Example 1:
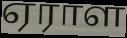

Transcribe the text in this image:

ஏராள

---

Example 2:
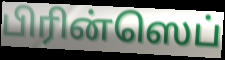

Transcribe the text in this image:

பிரின்ஸெப்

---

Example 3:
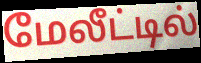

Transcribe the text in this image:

மேலீட்டில்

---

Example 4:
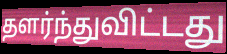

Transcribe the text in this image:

தளர்ந்துவிட்டது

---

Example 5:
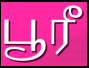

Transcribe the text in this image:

பூரீ